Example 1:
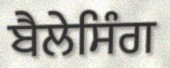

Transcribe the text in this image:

ਬੈਲੇਸਿੰਗ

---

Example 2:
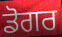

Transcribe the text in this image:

ਡੋਗਰ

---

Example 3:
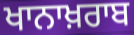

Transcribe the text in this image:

ਖਾਨਾਖ਼ਰਾਬ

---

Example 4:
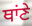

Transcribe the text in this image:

ਥਾਂਣੇ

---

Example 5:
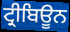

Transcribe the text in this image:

ਟ੍ਰੀਬਿਊਨ